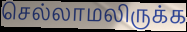
செல்லாமலிருக்க